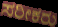
ಸರೀಕರು